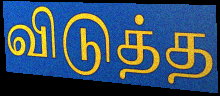
விடுத்த